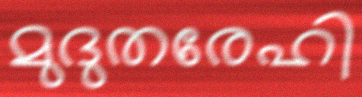
മുദുതരേഹി